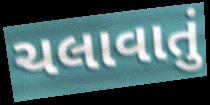
ચલાવાતું